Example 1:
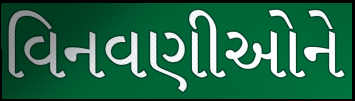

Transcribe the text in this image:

વિનવણીઓને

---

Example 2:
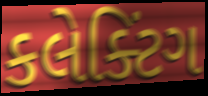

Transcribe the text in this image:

કલેક્ટિંગ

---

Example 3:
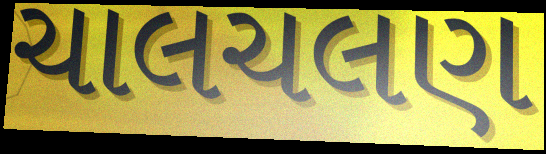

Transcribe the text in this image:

ચાલચલણ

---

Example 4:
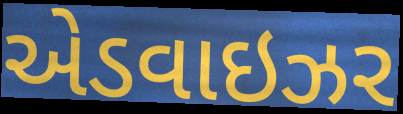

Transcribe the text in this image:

એડવાઇઝર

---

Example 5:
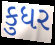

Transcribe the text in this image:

કુધર